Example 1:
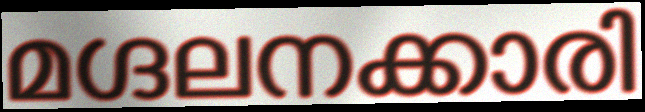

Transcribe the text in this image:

മഗ്ദലനക്കാരി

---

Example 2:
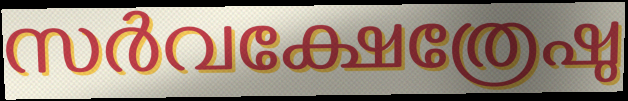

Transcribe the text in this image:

സർവക്ഷേത്രേഷു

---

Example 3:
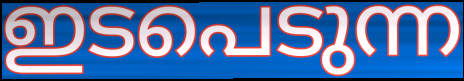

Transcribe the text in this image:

ഇടപെടുന്ന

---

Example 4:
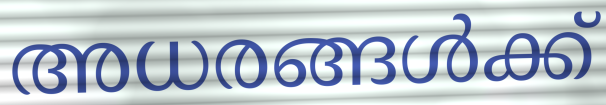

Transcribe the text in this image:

അധരങ്ങൾക്ക്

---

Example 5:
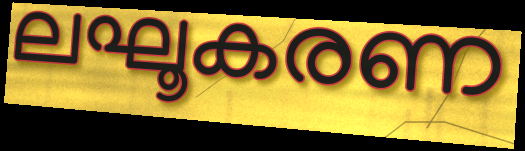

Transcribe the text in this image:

ലഘൂകരണ